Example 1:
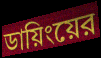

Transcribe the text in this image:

ডায়িংয়ের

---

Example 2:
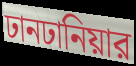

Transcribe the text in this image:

ঢানঢানিয়ার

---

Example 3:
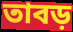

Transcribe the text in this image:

তাবড়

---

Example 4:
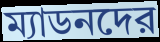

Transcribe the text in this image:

ম্যাডনদের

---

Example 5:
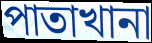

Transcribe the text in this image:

পাতাখানা